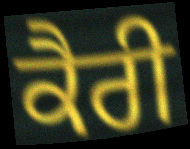
ਕੈਰੀ